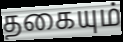
தகையும்